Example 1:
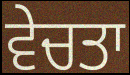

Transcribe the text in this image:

ਵੇਚਤਾ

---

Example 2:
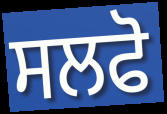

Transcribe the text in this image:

ਸਲਫੋ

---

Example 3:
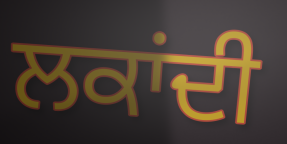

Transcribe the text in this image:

ਲਕਾਂਦੀ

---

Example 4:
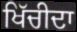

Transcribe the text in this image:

ਖਿੱਚੀਦਾ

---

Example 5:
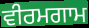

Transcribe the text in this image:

ਵੀਰਮਗਾਮ